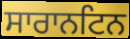
ਸਾਰਾਨਟਿਨ